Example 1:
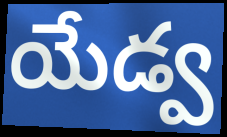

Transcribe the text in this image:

యేడ్వ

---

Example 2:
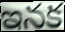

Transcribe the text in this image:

ఇనక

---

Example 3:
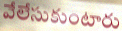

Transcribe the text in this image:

వేలేసుకుంటారు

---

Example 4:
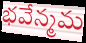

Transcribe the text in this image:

భవేన్మమ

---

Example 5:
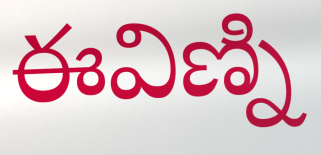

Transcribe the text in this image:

ఈవిణ్ని